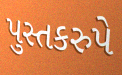
પુસ્તકરુપે